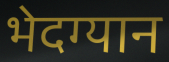
भेदग्यान